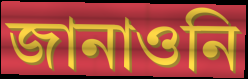
জানাওনি